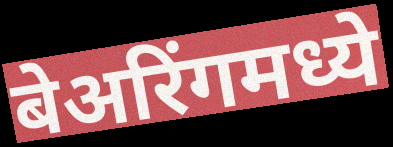
बेअरिंगमध्ये